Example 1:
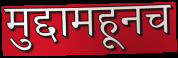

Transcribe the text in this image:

मुद्दामहूनच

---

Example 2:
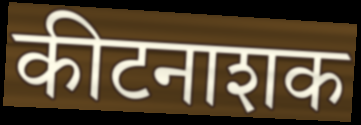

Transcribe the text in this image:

कीटनाशक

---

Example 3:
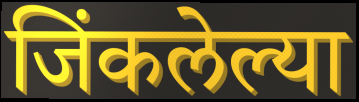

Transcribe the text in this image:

जिंकलेल्या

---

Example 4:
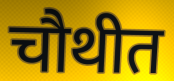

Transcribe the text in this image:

चौथीत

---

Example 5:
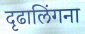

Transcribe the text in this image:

दृढालिंगना